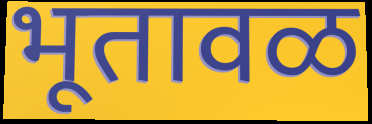
भूतावळ